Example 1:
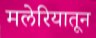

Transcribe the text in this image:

मलेरियातून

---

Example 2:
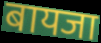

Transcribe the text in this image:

बायजा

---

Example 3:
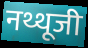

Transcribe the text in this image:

नथ्थूजी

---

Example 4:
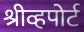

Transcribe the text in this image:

श्रीव्हपोर्ट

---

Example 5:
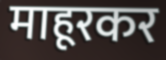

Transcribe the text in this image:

माहूरकर